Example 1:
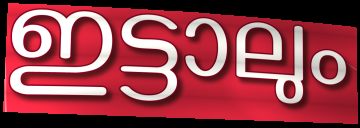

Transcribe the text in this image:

ഇട്ടാലും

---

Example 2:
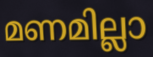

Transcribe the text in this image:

മണമില്ലാ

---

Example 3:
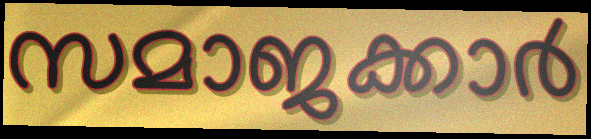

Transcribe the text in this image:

സമാജക്കാർ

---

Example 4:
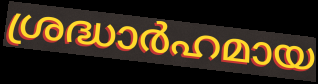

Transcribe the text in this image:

ശ്രദ്ധാർഹമായ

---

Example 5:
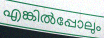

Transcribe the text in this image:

എങ്കിൽപ്പോലും